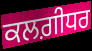
ਕਲਗ਼ੀਧਰ